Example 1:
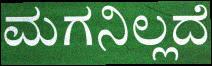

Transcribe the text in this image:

ಮಗನಿಲ್ಲದೆ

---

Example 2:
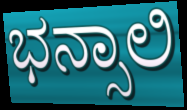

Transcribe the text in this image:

ಭನ್ಸಾಲಿ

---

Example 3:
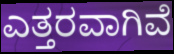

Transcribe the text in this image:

ಎತ್ತರವಾಗಿವೆ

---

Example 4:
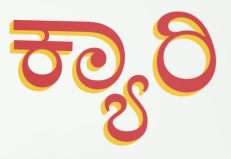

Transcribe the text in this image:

ಕ್ಯಾರಿ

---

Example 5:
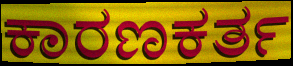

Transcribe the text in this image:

ಕಾರಣಕರ್ತ